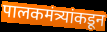
पालकमंत्र्यांकडून